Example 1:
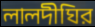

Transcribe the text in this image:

লালদীঘির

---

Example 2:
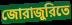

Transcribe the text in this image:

জোরাজুরিতে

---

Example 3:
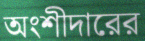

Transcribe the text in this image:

অংশীদারের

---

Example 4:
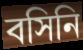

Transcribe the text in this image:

বসিনি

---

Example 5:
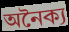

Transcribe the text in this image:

অনৈক্য